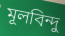
মূলবিন্দু